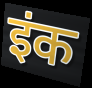
इंक